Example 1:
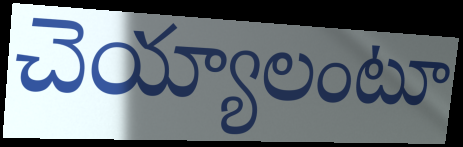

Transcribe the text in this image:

చెయ్యాలంటూ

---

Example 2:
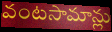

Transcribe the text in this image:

వంటసామాన్లు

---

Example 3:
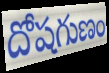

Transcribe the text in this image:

దోషగుణం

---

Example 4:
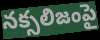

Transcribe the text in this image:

నక్సలిజంపై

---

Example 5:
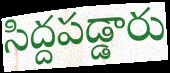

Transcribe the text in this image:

సిద్దపడ్డారు